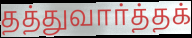
தத்துவார்த்தக்